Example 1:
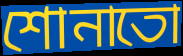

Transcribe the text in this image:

শোনাতো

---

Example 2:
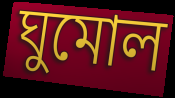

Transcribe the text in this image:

ঘুমোল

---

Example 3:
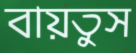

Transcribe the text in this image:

বায়তুস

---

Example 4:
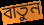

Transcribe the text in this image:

বাতুন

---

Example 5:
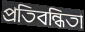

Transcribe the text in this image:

প্রতিবন্ধিতা